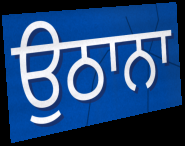
ਉਠਾਨਾ